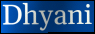
Dhyani